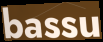
bassu